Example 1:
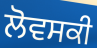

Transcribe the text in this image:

ਲੋਵਸਕੀ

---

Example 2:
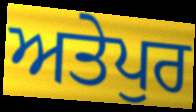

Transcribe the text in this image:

ਅਤੇਪੁਰ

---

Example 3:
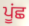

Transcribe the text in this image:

ਪੂਂਛ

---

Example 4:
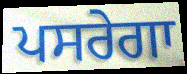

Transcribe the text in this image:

ਪਸਰੇਗਾ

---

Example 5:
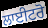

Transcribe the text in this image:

ਲਾਈਟਰੋ